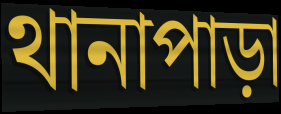
থানাপাড়া